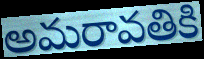
అమరావతికి